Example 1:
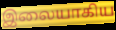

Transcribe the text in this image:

இலையாகிய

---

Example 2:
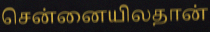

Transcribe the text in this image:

சென்னையிலதான்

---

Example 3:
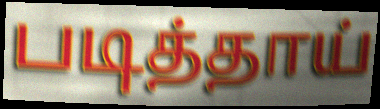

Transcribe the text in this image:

படித்தாய்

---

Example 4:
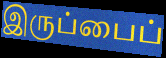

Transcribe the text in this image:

இருப்பைப்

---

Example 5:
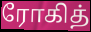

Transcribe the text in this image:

ரோகித்